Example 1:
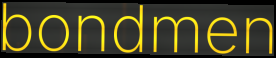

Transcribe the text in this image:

bondmen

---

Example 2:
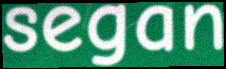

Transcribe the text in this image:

segan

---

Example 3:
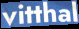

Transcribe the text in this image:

vitthal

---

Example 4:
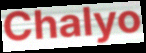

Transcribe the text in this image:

Chalyo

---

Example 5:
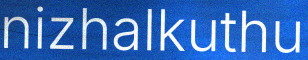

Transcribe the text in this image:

nizhalkuthu